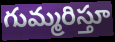
గుమ్మరిస్తూ